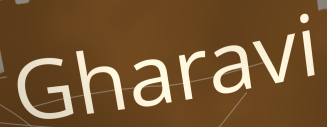
Gharavi